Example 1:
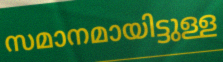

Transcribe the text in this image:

സമാനമായിട്ടുള്ള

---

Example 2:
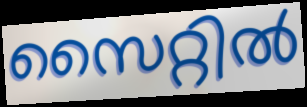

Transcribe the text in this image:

സൈറ്റിൽ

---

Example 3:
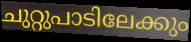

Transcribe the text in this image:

ചുറ്റുപാടിലേക്കും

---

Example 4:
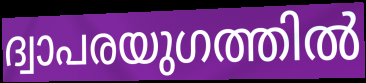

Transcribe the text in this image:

ദ്വാപരയുഗത്തിൽ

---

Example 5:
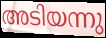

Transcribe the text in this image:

അടിയന്നു